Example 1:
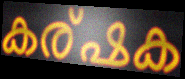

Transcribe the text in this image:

കര്ഷക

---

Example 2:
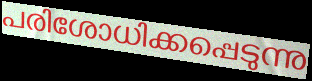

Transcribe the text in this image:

പരിശോധിക്കപ്പെടുന്നു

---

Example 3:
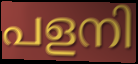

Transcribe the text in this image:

പളനി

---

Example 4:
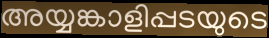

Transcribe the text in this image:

അയ്യങ്കാളിപ്പടയുടെ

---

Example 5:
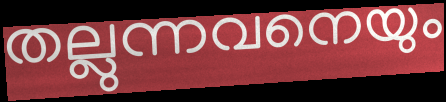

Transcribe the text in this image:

തല്ലുന്നവനെയും